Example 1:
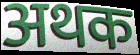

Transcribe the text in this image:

अथक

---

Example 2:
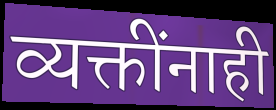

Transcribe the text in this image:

व्यक्तींनाही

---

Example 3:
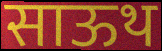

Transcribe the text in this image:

साऊथ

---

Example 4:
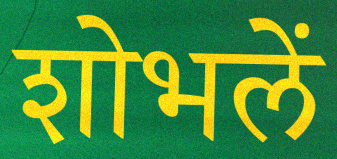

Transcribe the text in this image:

शोभलें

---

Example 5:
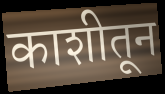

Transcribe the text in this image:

काशीतून